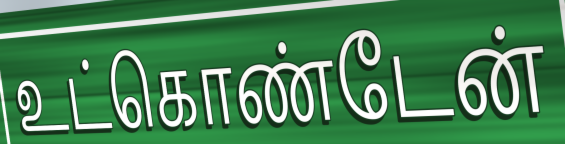
உட்கொண்டேன்